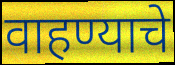
वाहण्याचे